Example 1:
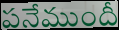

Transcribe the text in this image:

పనేముందీ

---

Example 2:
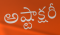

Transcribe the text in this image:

అష్టాక్షరీ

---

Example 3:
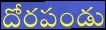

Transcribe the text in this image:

దోరపండు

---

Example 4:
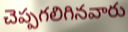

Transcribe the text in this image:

చెప్పగలిగినవారు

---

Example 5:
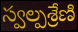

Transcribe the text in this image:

స్వల్పశ్రేణి